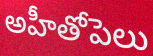
అహీతోపెలు